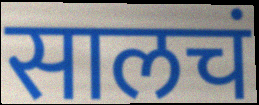
सालचं